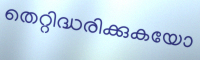
തെറ്റിദ്ധരിക്കുകയോ